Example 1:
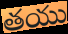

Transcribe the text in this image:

తయు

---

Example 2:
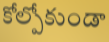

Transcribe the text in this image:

కోల్పోకుండా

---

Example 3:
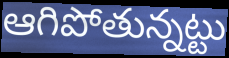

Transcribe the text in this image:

ఆగిపోతున్నట్టు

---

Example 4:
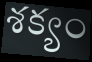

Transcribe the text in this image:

శక్యం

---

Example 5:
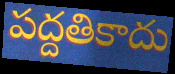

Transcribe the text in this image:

పద్దతికాదు